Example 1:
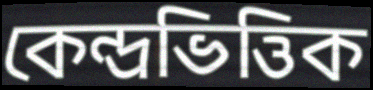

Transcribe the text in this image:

কেন্দ্রভিত্তিক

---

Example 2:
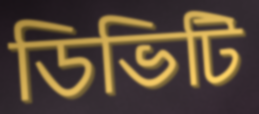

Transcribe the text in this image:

ডিভিটি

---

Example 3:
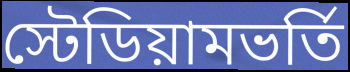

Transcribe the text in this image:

স্টেডিয়ামভর্তি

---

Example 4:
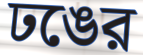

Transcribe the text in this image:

ঢঙের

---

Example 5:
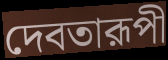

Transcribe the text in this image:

দেবতারূপী